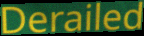
Derailed